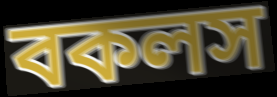
বকলস